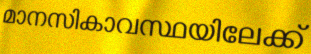
മാനസികാവസ്ഥയിലേക്ക്